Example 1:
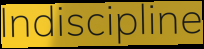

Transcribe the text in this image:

Indiscipline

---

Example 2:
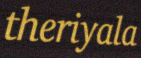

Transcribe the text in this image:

theriyala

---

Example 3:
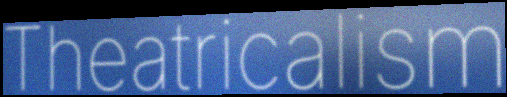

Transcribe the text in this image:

Theatricalism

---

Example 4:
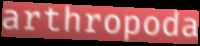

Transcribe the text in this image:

arthropoda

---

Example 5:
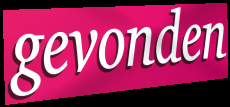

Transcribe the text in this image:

gevonden